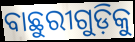
ବାଛୁରୀଗୁଡ଼ିକୁ